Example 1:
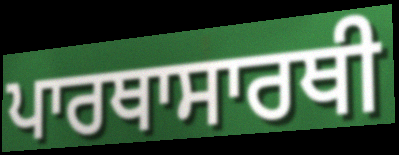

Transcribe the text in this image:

ਪਾਰਥਾਸਾਰਥੀ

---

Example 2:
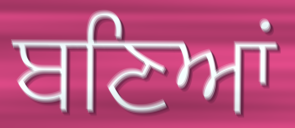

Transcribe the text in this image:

ਬਣਿਆਂ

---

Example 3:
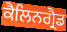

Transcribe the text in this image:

ਕੈਲਿਨਗ੍ਰੈਡ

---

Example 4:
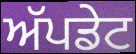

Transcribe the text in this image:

ਅੱਪਡੇਟ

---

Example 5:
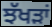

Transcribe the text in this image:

ਝੱਖੜਾਂ